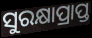
ସୁରକ୍ଷାପ୍ରାପ୍ତ